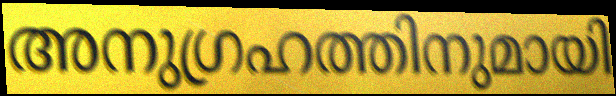
അനുഗ്രഹത്തിനുമായി